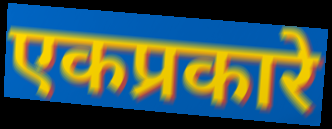
एकप्रकारे